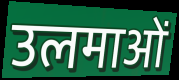
उलमाओं